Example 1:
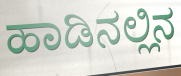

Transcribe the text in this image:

ಹಾಡಿನಲ್ಲಿನ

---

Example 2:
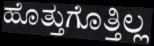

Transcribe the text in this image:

ಹೊತ್ತುಗೊತ್ತಿಲ್ಲ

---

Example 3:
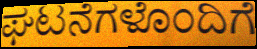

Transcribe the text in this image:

ಘಟನೆಗಳೊಂದಿಗೆ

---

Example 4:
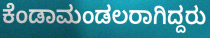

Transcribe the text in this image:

ಕೆಂಡಾಮಂಡಲರಾಗಿದ್ದರು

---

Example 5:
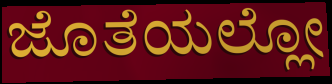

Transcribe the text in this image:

ಜೊತೆಯಲ್ಲೋ